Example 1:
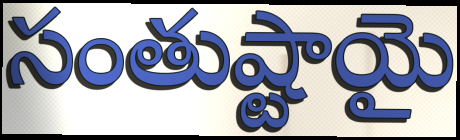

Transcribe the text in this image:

సంతుష్టాయై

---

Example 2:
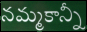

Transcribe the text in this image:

నమ్మకాన్నీ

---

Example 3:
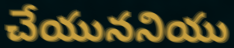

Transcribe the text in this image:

చేయుననియు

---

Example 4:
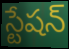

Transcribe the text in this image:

స్టేషన్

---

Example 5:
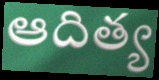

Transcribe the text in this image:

ఆదిత్య